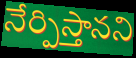
నేర్పిస్తానని